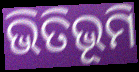
ଭିତିଭୂମି